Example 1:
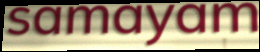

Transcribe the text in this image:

samayam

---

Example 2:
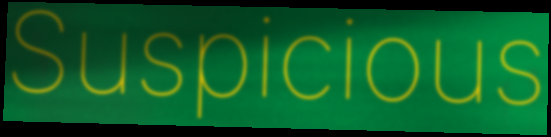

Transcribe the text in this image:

Suspicious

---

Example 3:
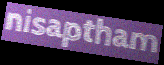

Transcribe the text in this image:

nisaptham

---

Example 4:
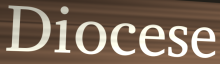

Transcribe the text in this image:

Diocese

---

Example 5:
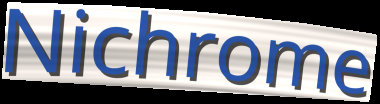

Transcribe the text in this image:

Nichrome